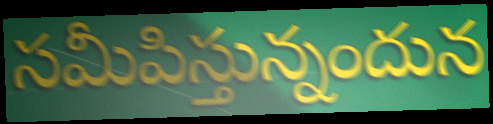
సమీపిస్తున్నందున